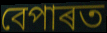
বেপাৰত